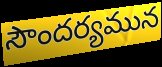
సౌందర్యమున